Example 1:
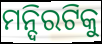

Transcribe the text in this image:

ମନ୍ଦିରଟିକୁ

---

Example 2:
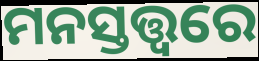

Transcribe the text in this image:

ମନସ୍ତତ୍ତ୍ଵରେ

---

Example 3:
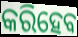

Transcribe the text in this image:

କରିହେବ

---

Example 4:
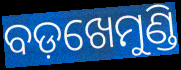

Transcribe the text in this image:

ବଡ଼ଖେମୁଣ୍ଡି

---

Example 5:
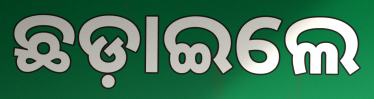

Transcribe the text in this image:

ଛଡ଼ାଇଲେ